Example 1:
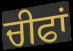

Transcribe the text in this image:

ਚੀਫਾਂ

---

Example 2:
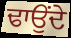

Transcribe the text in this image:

ਢਾਉਂਦੇ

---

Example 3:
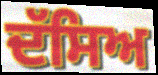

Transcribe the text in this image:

ਦੱਸਿਅ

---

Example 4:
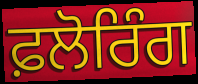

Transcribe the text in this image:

ਫ਼ਲੋਰਿੰਗ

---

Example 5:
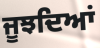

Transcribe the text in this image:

ਜੂਝਦਿਆਂ